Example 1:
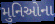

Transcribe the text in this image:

મુનિઓના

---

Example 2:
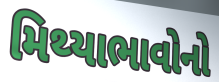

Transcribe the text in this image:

મિથ્યાભાવોનો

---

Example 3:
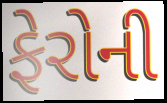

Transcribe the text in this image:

ફેરોની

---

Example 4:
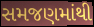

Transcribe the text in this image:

સમજણમાંથી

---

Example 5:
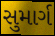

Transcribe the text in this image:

સુમાર્ગ